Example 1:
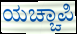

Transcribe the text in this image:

ಯಚ್ಚಾಪಿ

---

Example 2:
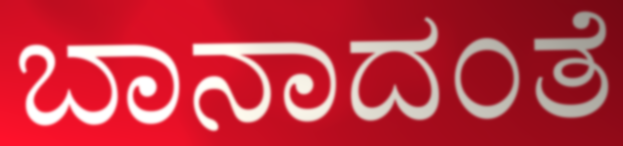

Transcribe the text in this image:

ಬಾನಾದಂತೆ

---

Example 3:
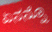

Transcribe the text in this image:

ಏನನ್ನೊ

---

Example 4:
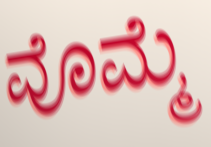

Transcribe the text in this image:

ವೊಮ್ಮೆ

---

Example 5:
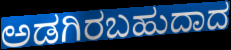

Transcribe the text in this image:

ಅಡಗಿರಬಹುದಾದ